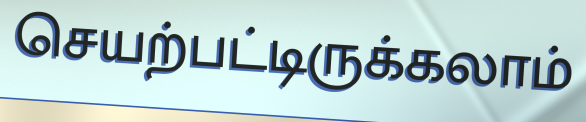
செயற்பட்டிருக்கலாம்